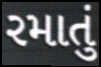
રમાતું